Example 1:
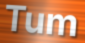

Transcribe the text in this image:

Tum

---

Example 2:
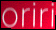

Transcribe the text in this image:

oriri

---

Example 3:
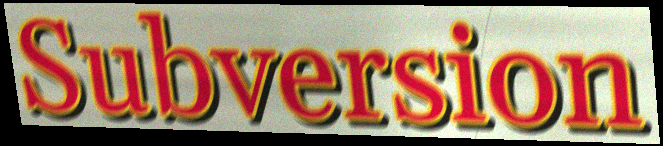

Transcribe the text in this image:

Subversion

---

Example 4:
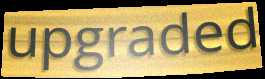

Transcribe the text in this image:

upgraded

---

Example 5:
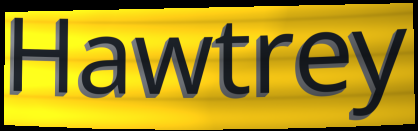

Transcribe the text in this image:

Hawtrey